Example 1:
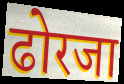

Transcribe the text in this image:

ढोरजा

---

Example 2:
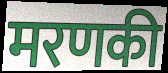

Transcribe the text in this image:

मरणकी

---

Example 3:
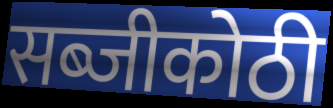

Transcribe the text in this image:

सब्जीकोठी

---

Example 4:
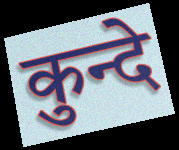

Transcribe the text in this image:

कुन्दे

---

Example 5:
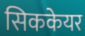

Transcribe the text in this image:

सिककेयर